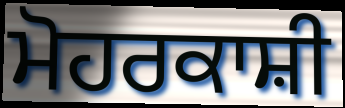
ਮੋਹਰਕਾਸ਼ੀ